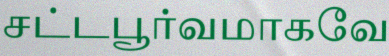
சட்டபூர்வமாகவே